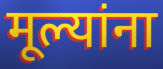
मूल्यांना